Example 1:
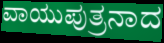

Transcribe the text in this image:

ವಾಯುಪುತ್ರನಾದ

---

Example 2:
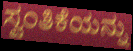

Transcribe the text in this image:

ಸ್ವಂತಿಕೆಯನ್ನು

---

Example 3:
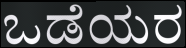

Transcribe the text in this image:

ಒಡೆಯರ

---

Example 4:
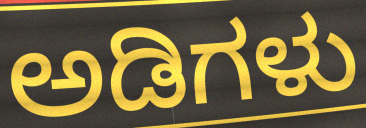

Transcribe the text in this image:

ಅಡಿಗಳು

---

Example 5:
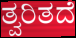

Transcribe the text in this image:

ತ್ವರಿತದೆ